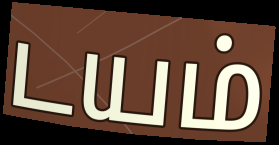
டயம்